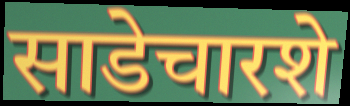
साडेचारशे